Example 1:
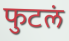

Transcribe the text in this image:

फुटलं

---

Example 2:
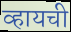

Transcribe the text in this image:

व्हायची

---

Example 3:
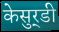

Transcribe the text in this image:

केसुर्डी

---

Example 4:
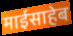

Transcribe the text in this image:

माईसाहेब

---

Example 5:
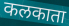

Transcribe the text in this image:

कलकाता